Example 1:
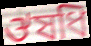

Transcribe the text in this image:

ঔষধি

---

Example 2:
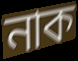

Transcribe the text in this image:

নাক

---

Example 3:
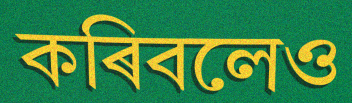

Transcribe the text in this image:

কৰিবলেও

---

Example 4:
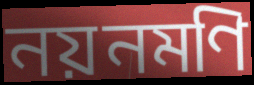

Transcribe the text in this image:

নয়নমণি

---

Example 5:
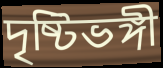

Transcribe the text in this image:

দৃষ্টিভঙ্গী